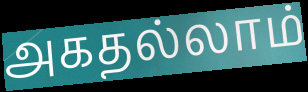
அகதல்லாம்